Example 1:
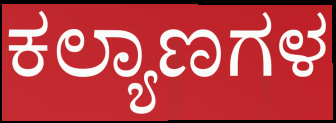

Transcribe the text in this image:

ಕಲ್ಯಾಣಗಳ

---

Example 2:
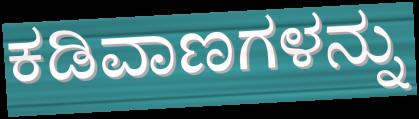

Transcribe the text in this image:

ಕಡಿವಾಣಗಳನ್ನು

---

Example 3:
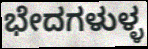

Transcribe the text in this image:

ಭೇದಗಳುಳ್ಳ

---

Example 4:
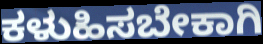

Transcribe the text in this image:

ಕಳುಹಿಸಬೇಕಾಗಿ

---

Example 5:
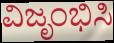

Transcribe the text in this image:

ವಿಜೃಂಭಿಸಿ